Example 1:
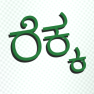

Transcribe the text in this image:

ರೆಕ್ಕ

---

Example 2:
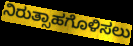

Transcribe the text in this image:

ನಿರುತ್ಸಾಹಗೊಳಿಸಲು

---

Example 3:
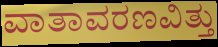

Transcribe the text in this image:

ವಾತಾವರಣವಿತ್ತು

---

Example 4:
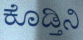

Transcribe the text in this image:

ಕೊಡ್ತಿನಿ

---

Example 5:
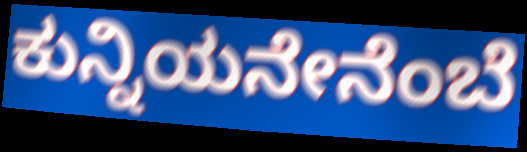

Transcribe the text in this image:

ಕುನ್ನಿಯನೇನೆಂಬೆ